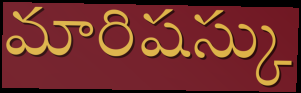
మారిషస్కు